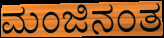
ಮಂಜಿನಂತ